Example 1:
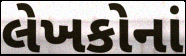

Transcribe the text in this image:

લેખકોનાં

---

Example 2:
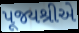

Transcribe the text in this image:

પૂજ્યશ્રીએ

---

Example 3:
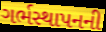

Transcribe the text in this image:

ગર્ભસ્થાપનની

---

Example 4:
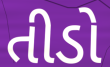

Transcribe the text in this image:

તીડો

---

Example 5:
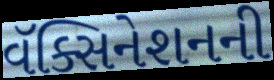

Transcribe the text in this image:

વૅક્સિનેશનની